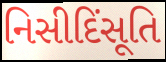
નિસીદિંસૂતિ